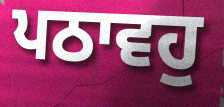
ਪਠਾਵਹੁ